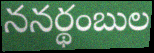
ననర్థంబుల